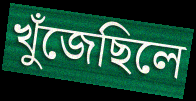
খুঁজেছিলে